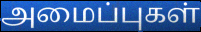
அமைப்புகள்